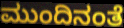
ಮುಂದಿನಂತೆ